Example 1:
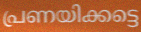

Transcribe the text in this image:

പ്രണയിക്കട്ടെ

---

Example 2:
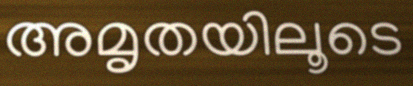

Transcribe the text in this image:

അമൃതയിലൂടെ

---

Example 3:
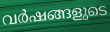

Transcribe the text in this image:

വർഷങ്ങളുടെ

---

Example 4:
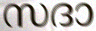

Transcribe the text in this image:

സദാ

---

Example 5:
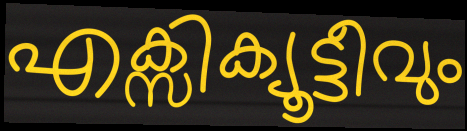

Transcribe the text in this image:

എക്സിക്യൂട്ടീവും